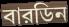
বারডিন